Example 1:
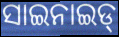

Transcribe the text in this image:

ସାଇନାଇଡ୍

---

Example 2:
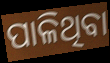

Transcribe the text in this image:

ପାଳିଥିବା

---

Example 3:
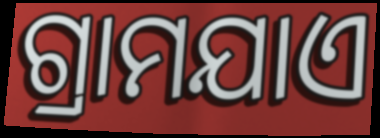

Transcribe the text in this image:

ଗ୍ରାମଯାଏ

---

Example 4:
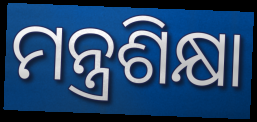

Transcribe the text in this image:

ମନ୍ତ୍ରଶିକ୍ଷା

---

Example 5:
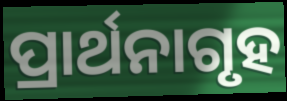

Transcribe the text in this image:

ପ୍ରାର୍ଥନାଗୃହ